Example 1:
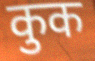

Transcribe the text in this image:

कुक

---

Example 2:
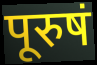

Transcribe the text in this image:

पूरुषं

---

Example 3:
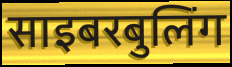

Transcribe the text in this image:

साइबरबुलिंग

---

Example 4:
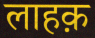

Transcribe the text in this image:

लाहक़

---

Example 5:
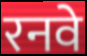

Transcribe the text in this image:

रनवे